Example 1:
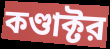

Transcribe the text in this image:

কণ্ডাক্টর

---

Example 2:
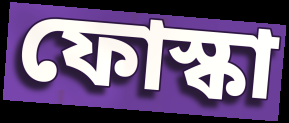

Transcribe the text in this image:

ফোস্কা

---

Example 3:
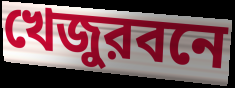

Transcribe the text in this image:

খেজুরবনে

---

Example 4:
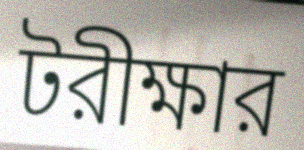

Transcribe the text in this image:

টরীক্ষার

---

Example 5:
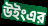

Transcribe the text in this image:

উইংএর